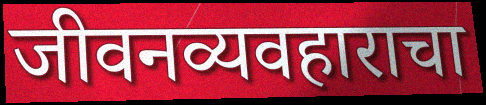
जीवनव्यवहाराचा